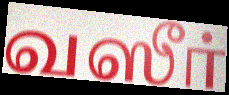
வஸீர்